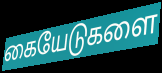
கையேடுகளை